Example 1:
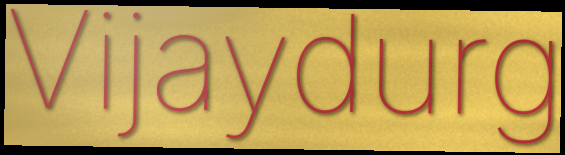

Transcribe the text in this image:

Vijaydurg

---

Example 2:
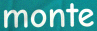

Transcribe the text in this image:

monte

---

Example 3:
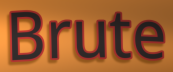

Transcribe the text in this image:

Brute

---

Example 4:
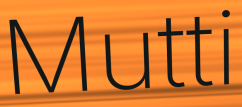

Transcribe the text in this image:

Mutti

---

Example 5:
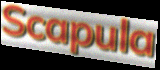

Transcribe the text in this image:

Scapula